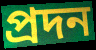
প্ৰদন